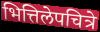
भित्तिलेपचित्रे